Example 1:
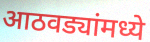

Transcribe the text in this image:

आठवड्यांमध्ये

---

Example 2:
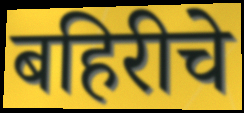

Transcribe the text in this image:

बहिरीचे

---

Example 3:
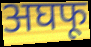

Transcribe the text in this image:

अघफू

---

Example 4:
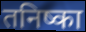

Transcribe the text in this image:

तनिष्का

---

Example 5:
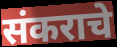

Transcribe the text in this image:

संकराचे